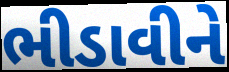
ભીડાવીને